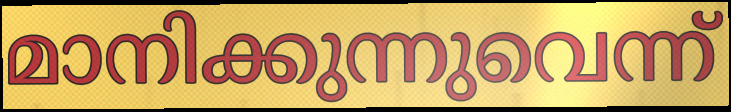
മാനിക്കുന്നുവെന്ന്